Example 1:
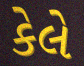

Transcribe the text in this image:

કેલે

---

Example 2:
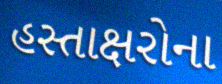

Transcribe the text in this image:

હસ્તાક્ષરોના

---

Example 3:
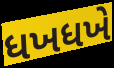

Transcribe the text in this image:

ધખધખે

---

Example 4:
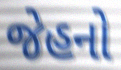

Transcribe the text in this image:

જેહનો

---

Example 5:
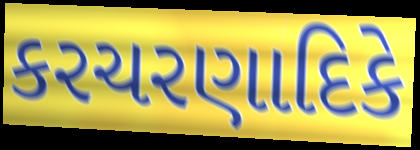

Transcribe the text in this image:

કરચરણાદિકે